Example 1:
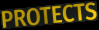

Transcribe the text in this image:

PROTECTS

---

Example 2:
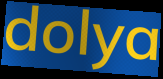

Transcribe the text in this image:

dolya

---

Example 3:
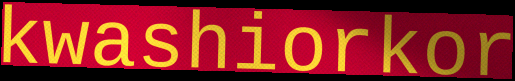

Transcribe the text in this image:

kwashiorkor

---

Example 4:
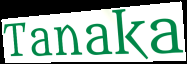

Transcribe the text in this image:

Tanaka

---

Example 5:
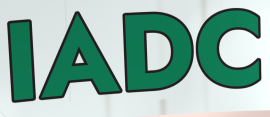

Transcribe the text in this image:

IADC